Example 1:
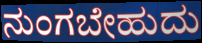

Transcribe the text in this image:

ನುಂಗಬೇಹುದು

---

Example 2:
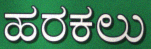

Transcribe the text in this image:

ಹರಕಲು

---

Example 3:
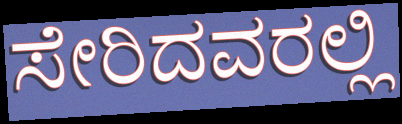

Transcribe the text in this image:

ಸೇರಿದವರಲ್ಲಿ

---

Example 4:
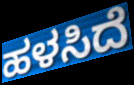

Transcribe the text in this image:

ಹಳಸಿದೆ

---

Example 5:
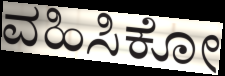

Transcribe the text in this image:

ವಹಿಸಿಕೋ